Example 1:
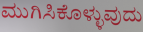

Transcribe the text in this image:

ಮುಗಿಸಿಕೊಳ್ಳುವುದು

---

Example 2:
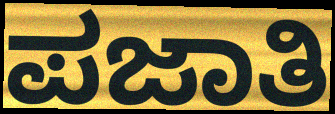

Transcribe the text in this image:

ಪಜಾತಿ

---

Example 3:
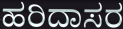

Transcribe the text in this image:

ಹರಿದಾಸರ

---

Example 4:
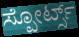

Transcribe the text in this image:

ಸ್ಪೋರ್ಟ್ಸ್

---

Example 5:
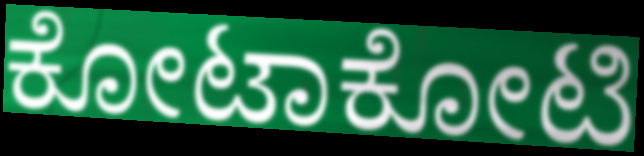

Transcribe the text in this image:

ಕೋಟಾಕೋಟಿ